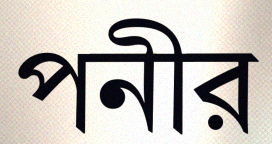
পনীর